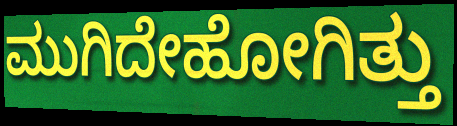
ಮುಗಿದೇಹೋಗಿತ್ತು